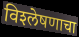
विश्‍लेषणाचा